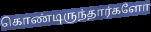
கொண்டிருந்தார்களோ